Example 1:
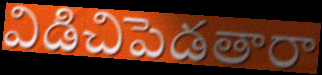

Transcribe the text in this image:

విడిచిపెడతారా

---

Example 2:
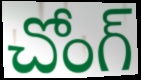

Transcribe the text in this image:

చోంగ్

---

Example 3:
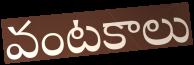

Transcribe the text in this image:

వంటకాలు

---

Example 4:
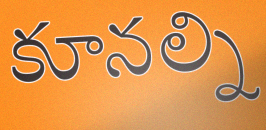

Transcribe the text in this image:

కూనల్ని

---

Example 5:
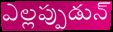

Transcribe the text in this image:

ఎల్లప్పుడున్